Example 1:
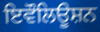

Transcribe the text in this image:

ਇਵੌਲਿਊਸ਼ਨ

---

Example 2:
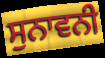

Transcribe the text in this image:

ਸੁਨਾਵਨੀ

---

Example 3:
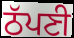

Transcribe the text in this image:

ਠੱਪਣੀ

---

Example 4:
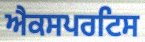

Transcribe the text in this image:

ਐਕਸਪਰਟਿਸ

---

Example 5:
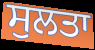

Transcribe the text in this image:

ਸੁਲਤਾ